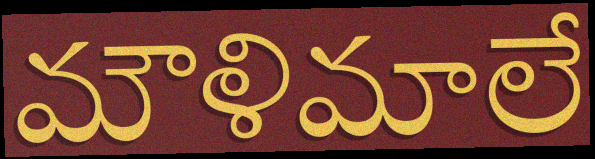
మౌళిమాలే